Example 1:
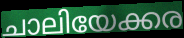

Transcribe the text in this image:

ചാലിയേക്കര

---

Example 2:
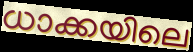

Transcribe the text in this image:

ധാക്കയിലെ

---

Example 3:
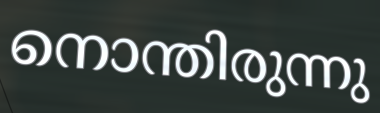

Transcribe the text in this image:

നൊന്തിരുന്നു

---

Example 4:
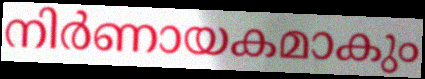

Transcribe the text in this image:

നിർണായകമാകും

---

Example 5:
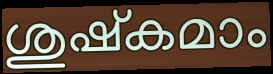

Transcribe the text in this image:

ശുഷ്കമാം